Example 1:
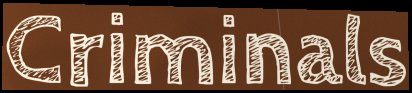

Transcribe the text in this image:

Criminals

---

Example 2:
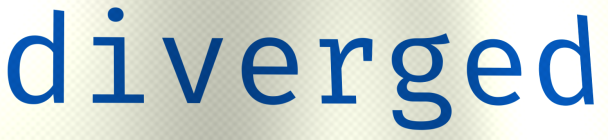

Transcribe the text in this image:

diverged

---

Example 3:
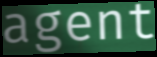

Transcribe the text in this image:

agent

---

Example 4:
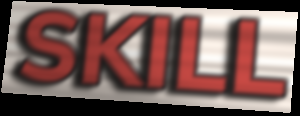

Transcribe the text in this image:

SKILL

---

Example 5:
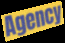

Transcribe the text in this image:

Agency